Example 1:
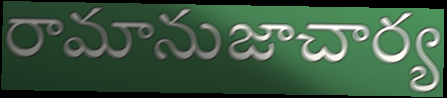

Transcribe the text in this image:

రామానుజాచార్య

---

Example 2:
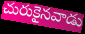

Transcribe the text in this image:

చురుకైనవాడు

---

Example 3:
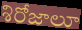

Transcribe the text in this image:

శిరోజాలూ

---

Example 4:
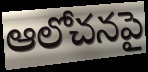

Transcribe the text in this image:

ఆలోచనపై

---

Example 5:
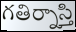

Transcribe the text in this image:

గతిర్నాస్తి